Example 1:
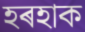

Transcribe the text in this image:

হৰহাক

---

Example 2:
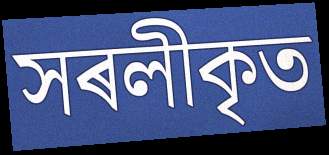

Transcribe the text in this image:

সৰলীকৃত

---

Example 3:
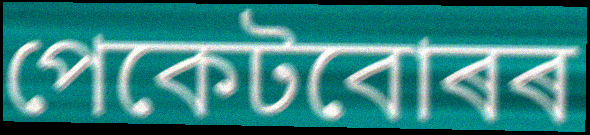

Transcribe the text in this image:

পেকেটবোৰৰ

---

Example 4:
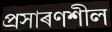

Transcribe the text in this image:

প্ৰসাৰণশীল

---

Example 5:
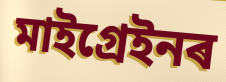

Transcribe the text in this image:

মাইগ্ৰেইনৰ